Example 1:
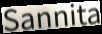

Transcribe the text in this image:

Sannita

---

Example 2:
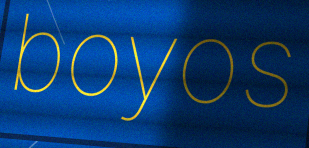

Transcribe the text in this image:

boyos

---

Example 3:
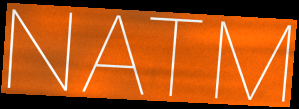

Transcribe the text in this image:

NATM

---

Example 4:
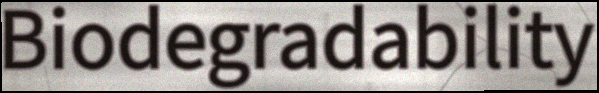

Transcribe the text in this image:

Biodegradability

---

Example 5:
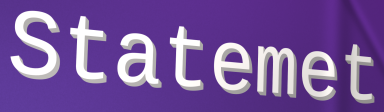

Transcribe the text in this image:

Statemet